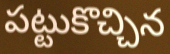
పట్టుకొచ్చిన